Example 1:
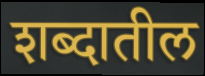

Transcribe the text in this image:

शब्दातील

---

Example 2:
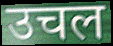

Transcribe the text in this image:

उचल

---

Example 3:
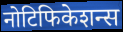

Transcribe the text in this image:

नोटिफिकेशन्स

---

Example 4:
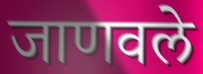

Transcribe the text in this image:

जाणवले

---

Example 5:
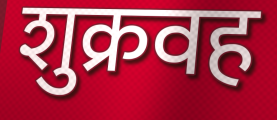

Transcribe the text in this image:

शुक्रवह